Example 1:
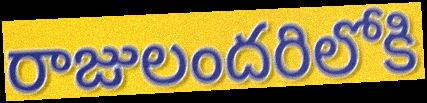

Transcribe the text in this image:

రాజులందరిలోకి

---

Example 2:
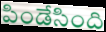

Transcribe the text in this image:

పిండేసింది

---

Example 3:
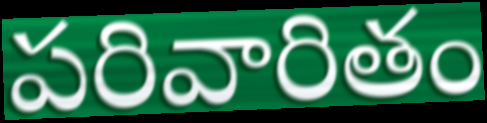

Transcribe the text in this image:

పరివారితం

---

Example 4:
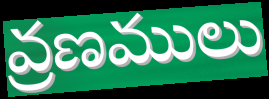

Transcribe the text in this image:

వ్రణములు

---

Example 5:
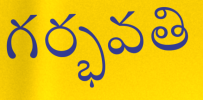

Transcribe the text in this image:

గర్భవతి